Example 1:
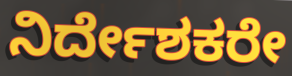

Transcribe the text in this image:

ನಿರ್ದೇಶಕರೇ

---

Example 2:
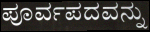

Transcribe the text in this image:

ಪೂರ್ವಪದವನ್ನು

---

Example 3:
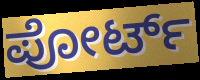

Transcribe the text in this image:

ಪೋರ್ಟ್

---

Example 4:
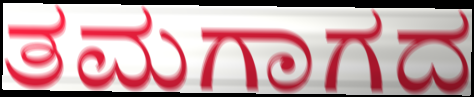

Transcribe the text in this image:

ತಮಗಾಗದ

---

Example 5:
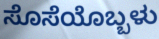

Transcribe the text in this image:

ಸೊಸೆಯೊಬ್ಬಳು